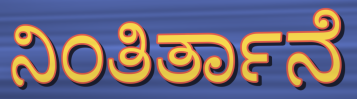
ನಿಂತಿರ್ತಾನೆ